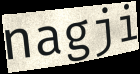
nagji